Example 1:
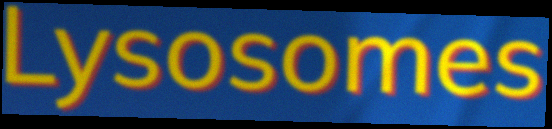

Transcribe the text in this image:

Lysosomes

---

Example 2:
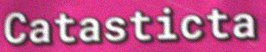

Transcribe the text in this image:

Catasticta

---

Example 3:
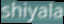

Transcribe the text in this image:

shiyala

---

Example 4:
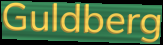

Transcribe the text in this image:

Guldberg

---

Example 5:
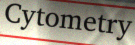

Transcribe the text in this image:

Cytometry